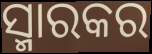
ସ୍ମାରକର